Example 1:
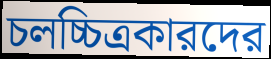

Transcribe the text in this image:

চলচ্চিত্রকারদের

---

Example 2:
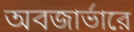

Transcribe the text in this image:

অবজার্ভারে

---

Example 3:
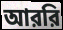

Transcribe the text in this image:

আররি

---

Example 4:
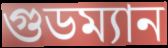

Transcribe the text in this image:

গুডম্যান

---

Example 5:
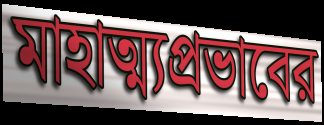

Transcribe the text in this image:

মাহাত্ম্যপ্রভাবের